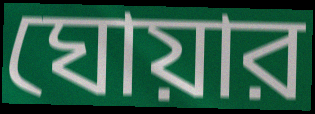
ঘোয়ার